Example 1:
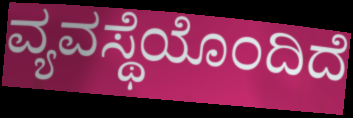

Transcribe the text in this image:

ವ್ಯವಸ್ಥೆಯೊಂದಿದೆ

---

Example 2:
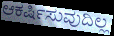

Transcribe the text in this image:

ಆಕರ್ಷಿಸುವುದಿಲ್ಲ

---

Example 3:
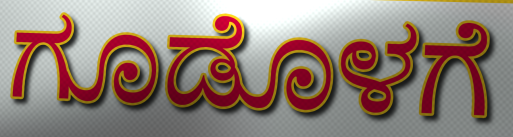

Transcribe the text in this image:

ಗೂಡೊಳಗೆ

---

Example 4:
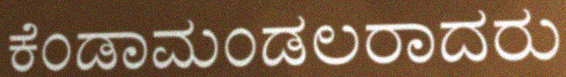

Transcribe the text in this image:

ಕೆಂಡಾಮಂಡಲರಾದರು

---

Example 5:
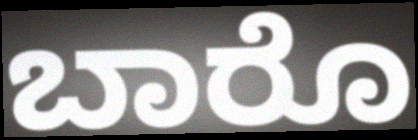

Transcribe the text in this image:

ಬಾರೊ